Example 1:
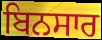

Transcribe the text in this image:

ਬਿਨਸਾਰ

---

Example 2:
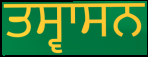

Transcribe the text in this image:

ਤਸ੍ਵਾਸਨ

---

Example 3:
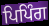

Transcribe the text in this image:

ਪਿਪਿੰਗ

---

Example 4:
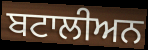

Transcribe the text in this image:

ਬਟਾਲੀਅਨ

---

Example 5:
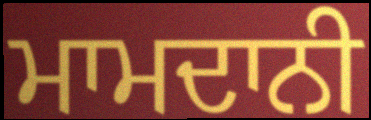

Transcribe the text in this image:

ਮਾਮਦਾਨੀ